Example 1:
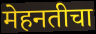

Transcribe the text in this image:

मेहनतीचा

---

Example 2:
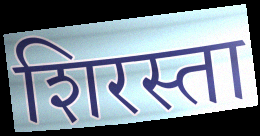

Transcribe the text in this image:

शिरस्ता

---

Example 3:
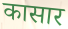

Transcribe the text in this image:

कासार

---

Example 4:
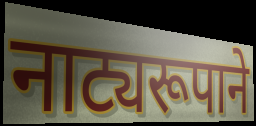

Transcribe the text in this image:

नाट्यरूपाने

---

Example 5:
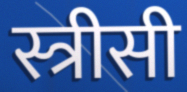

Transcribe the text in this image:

स्त्रीसी